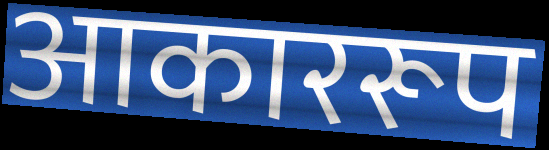
आकाररूप